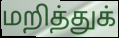
மறித்துக்